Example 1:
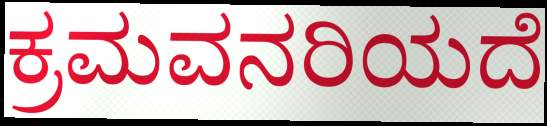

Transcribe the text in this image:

ಕ್ರಮವನರಿಯದೆ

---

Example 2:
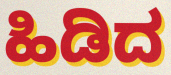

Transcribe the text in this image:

ಹಿಡಿದ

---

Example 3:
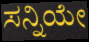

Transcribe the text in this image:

ಸನ್ನಿಯೇ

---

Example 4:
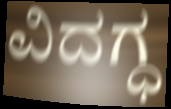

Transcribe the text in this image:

ವಿದಗ್ಧ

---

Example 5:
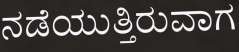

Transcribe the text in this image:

ನಡೆಯುತ್ತಿರುವಾಗ